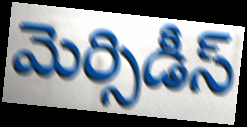
మెర్సిడీస్